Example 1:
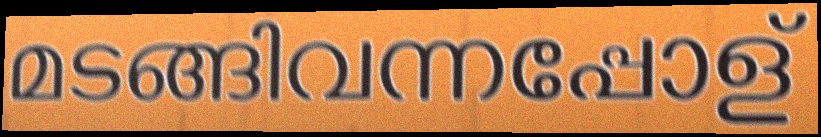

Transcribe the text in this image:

മടങ്ങിവന്നപ്പോള്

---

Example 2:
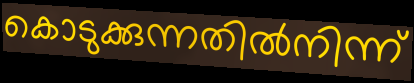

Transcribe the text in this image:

കൊടുക്കുന്നതിൽനിന്ന്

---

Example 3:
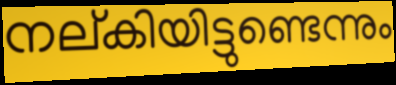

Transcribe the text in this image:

നല്കിയിട്ടുണ്ടെന്നും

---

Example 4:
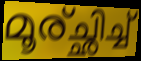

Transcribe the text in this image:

മൂര്ച്ഛിച്ച്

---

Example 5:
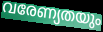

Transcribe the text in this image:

വരേണ്യതയും